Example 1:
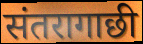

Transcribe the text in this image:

संतरागाछी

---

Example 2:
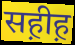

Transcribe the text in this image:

सह़ीह़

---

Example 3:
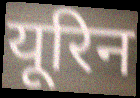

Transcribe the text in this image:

यूरिन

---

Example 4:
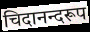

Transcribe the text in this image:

चिदानन्दरूप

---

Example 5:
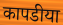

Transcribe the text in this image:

कापडीया